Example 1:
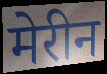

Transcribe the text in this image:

मेरीन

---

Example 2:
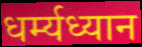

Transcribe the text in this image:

धर्म्यध्यान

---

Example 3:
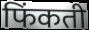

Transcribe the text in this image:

फिंकती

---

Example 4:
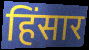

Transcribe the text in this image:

हिंसार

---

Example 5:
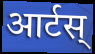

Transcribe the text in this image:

आर्टस्